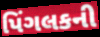
પિંગલકની